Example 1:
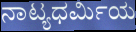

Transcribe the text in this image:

ನಾಟ್ಯಧರ್ಮಿಯ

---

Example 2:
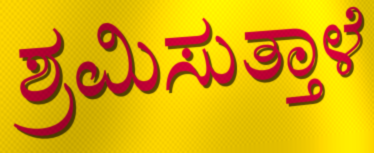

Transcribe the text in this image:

ಶ್ರಮಿಸುತ್ತಾಳೆ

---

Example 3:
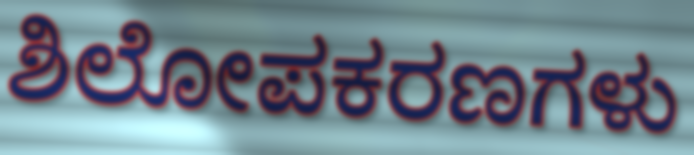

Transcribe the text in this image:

ಶಿಲೋಪಕರಣಗಳು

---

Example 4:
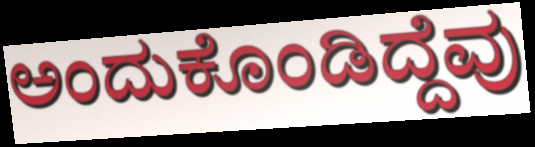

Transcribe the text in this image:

ಅಂದುಕೊಂಡಿದ್ದೆವು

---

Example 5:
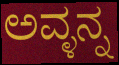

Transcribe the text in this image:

ಅವ್ಳನ್ನ